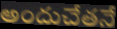
అందుచేతనే